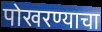
पोखरण्याचा